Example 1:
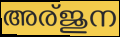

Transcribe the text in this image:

അര്ജുന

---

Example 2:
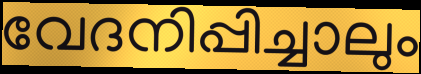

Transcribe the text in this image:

വേദനിപ്പിച്ചാലും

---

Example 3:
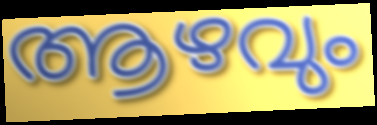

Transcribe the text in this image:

ആഴവും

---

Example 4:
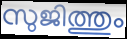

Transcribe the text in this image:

സുജിത്തും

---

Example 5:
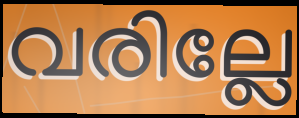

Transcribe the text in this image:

വരില്ലേ